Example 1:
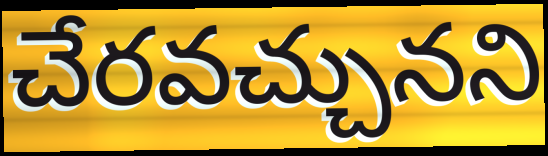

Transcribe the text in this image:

చేరవచ్చునని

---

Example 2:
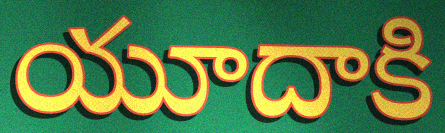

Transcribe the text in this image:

యూదాకి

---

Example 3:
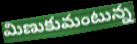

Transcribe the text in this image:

మిణుకుమంటున్న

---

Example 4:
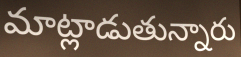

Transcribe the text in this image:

మాట్లాడుతున్నారు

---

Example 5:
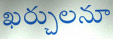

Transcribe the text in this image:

ఖర్చులనూ